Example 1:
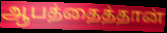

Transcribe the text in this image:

ஆபத்தைத்தான்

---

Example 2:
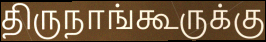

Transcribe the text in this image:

திருநாங்கூருக்கு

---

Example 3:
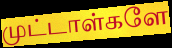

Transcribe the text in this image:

முட்டாள்களே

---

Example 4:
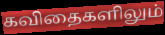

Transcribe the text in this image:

கவிதைகளிலும்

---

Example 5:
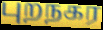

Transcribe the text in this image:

புறநகர